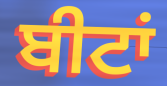
ਬੀਟਾਂ